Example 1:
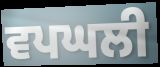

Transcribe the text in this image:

ਵਪਘਲੀ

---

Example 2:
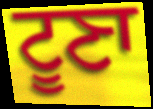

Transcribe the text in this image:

ਟੂਣਾ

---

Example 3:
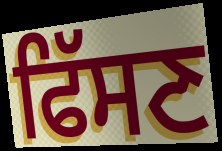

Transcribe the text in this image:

ਫਿੱਸਣ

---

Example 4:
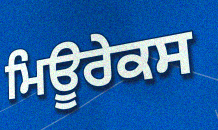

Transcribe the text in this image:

ਮਿਊਰੇਕਸ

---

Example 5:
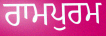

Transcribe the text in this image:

ਰਾਮਪੁਰਮ